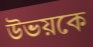
উভয়কে